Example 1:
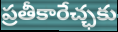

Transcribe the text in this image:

ప్రతీకారేచ్ఛకు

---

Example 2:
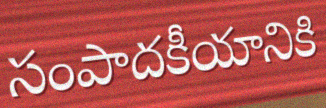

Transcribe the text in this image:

సంపాదకీయానికి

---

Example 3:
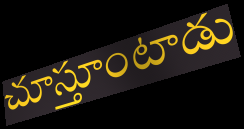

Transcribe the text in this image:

చూస్తూంటాడు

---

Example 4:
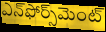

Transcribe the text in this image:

ఎన్‌ఫోర్స్‌మెంట్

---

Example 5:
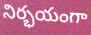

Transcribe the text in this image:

నిర్భయంగా